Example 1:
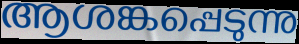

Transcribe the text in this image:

ആശങ്കപ്പെടുന്നു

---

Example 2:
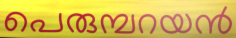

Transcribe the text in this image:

പെരുമ്പറയൻ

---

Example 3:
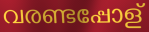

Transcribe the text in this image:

വരണ്ടപ്പോള്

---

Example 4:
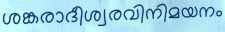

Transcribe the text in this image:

ശങ്കരാദീശ്വരവിനിമയനം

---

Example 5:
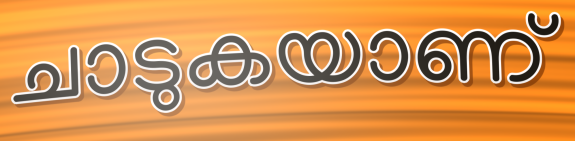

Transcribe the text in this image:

ചാടുകയാണ്